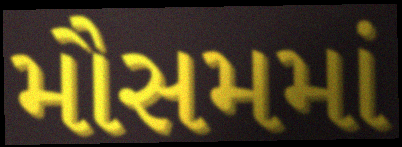
મૌસમમાં